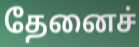
தேனைச்